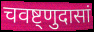
चवष्ट्णुदासां